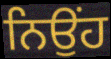
ਨਿਉਂਹ